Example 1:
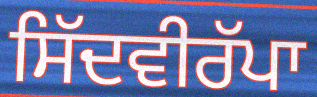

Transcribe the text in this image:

ਸਿੱਦਵੀਰੱਪਾ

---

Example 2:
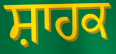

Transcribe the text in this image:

ਸ਼ਾਹਕ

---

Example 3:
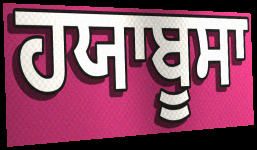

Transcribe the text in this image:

ਹਯਾਬੂਸਾ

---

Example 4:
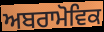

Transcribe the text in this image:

ਅਬਰਾਮੋਵਿਕ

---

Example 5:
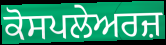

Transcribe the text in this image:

ਕੋਸਪਲੇਅਰਜ਼